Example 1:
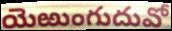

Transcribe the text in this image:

యెఱుంగుదువో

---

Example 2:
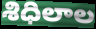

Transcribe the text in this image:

శిధిలాల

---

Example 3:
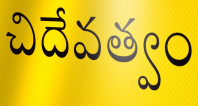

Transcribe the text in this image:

చిదేవత్వం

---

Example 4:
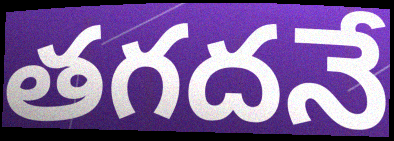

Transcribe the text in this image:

తగదనే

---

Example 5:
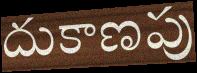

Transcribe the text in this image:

దుకాణపు